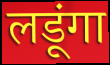
लडूंगा